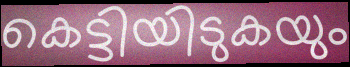
കെട്ടിയിടുകയും